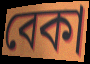
বেকা